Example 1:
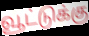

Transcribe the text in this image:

வூட்டுக்கு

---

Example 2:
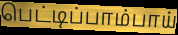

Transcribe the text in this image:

பெட்டிப்பாம்பாய்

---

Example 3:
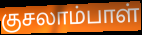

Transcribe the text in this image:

குசலாம்பாள்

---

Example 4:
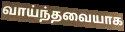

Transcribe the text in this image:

வாய்ந்தவையாக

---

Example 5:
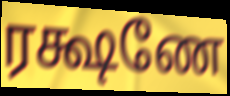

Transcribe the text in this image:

ரக்ஷணே